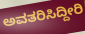
ಅವತರಿಸಿದ್ದೀರಿ